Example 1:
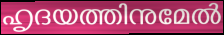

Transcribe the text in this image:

ഹൃദയത്തിനുമേൽ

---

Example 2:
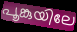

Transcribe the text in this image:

പൂങ്കുയിലേ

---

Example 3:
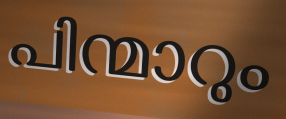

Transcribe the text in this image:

പിന്മാറും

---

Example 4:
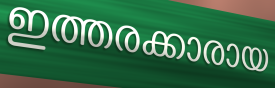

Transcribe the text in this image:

ഇത്തരക്കാരായ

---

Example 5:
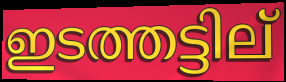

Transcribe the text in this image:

ഇടത്തട്ടില്